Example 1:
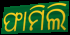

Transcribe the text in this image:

ଫାମିଲି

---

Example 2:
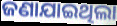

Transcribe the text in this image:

ଜଣାଯାଇଥିଲା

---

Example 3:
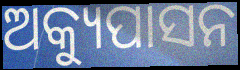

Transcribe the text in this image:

ଅକ୍ୟୁପାସନ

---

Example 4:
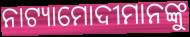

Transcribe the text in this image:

ନାଟ୍ୟାମୋଦୀମାନଙ୍କୁ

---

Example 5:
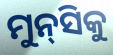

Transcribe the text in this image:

ମୁନ୍‌ସିକୁ